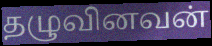
தழுவினவன்